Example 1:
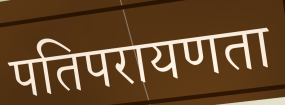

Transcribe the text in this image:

पतिपरायणता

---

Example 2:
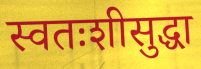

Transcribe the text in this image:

स्वतःशीसुद्धा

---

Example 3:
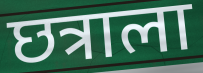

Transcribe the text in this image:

छत्राला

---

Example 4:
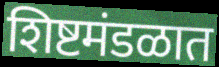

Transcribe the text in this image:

शिष्टमंडळात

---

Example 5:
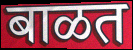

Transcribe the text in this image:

बाळत